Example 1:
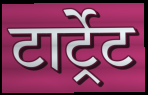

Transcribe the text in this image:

टार्ट्रेट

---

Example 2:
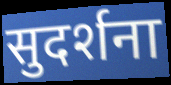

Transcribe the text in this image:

सुदर्शना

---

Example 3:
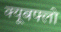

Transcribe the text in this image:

क्यूबफ्लो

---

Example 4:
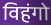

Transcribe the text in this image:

विहंगो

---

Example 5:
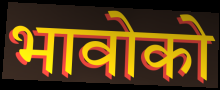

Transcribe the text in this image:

भावोको